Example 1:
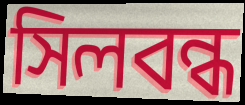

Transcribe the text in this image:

সিলবন্ধ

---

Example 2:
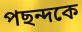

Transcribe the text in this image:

পছন্দকে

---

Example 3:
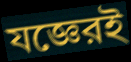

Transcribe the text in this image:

যজ্ঞেরই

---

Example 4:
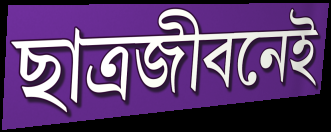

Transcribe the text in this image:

ছাত্রজীবনেই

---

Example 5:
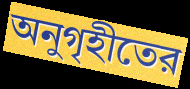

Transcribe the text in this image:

অনুগৃহীতের